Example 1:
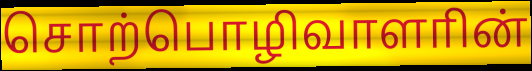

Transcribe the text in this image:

சொற்பொழிவாளரின்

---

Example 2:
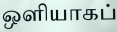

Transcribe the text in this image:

ஒளியாகப்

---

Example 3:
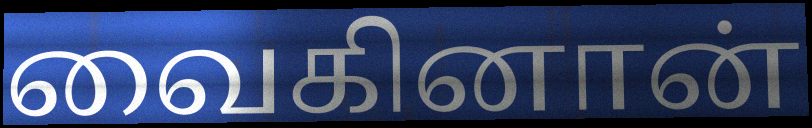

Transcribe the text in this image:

வைகினான்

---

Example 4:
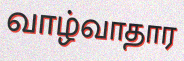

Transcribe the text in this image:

வாழ்வாதார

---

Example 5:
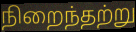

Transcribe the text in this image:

நிறைந்தற்று